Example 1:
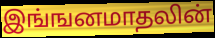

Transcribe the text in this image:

இங்ஙனமாதலின்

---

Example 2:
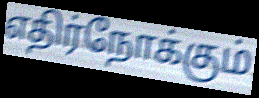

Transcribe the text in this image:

எதிர்நோக்கும்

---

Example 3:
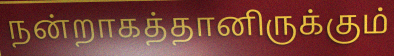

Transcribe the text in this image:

நன்றாகத்தானிருக்கும்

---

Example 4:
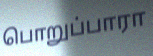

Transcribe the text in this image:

பொறுப்பாரா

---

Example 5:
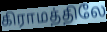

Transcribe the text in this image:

கிராமத்திலே